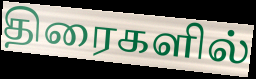
திரைகளில்